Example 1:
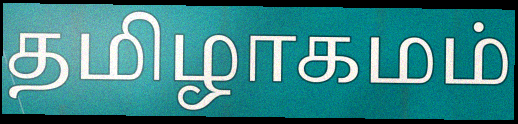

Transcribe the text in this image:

தமிழாகமம்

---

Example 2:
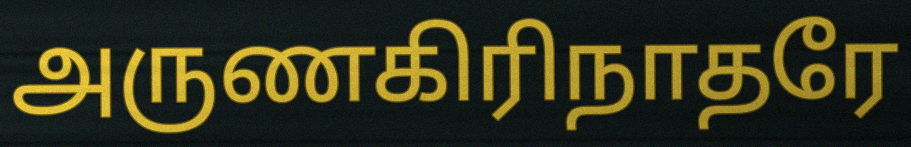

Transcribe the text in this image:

அருணகிரிநாதரே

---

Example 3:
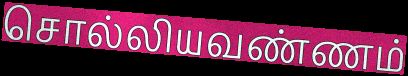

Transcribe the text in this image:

சொல்லியவண்ணம்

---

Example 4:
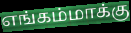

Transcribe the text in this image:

எங்கம்மாக்கு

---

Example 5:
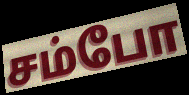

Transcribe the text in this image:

சம்போ